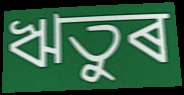
ঋতুৰ